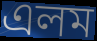
এলম